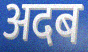
अदब